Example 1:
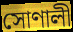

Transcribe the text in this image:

সোণালী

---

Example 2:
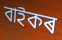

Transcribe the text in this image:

বাইকৰ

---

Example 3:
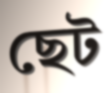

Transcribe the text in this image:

ছেট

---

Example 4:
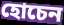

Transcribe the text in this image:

হোচেন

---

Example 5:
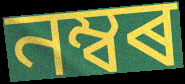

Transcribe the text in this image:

নম্বৰ